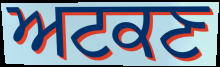
ਅਟਕਣ